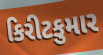
કિરીટકુમાર